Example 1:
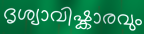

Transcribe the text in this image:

ദൃശ്യാവിഷ്കാരവും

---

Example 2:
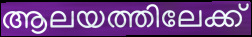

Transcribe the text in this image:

ആലയത്തിലേക്ക്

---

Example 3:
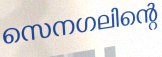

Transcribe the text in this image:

സെനഗലിന്റെ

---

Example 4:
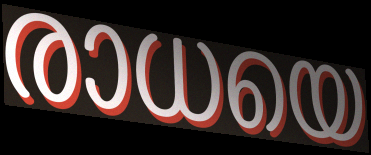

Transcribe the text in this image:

രാധയെ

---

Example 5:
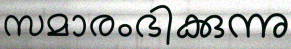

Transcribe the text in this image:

സമാരംഭിക്കുന്നു